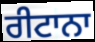
ਰੀਟਾਨਾ